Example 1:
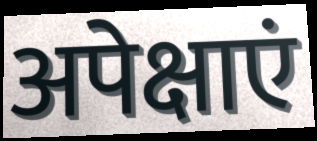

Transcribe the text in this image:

अपेक्षाएं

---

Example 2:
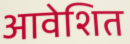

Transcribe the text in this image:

आवेशित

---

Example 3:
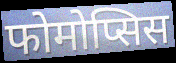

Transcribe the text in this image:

फोमोप्सिस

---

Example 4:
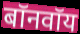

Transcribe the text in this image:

बॉनवॉय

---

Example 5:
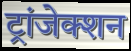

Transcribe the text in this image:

ट्रांजेक्शन